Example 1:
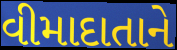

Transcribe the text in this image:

વીમાદાતાને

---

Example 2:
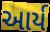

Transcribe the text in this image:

આર્ય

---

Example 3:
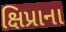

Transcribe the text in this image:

ક્ષિપ્રાના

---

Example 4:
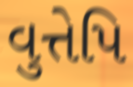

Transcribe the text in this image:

વુત્તેપિ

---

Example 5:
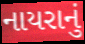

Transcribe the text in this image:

નાયરાનું